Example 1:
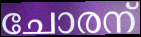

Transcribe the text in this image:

ചോരന്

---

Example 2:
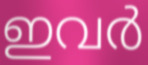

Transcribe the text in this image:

ഇവർ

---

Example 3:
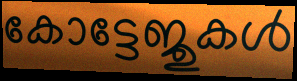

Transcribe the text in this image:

കോട്ടേജുകൾ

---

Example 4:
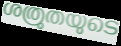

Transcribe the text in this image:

ശത്രുതയുടെ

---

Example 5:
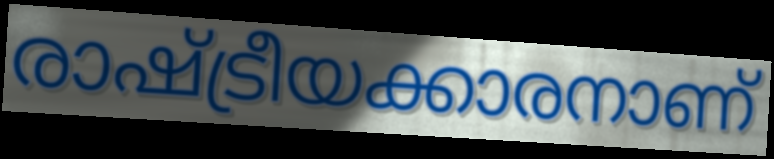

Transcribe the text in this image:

രാഷ്ട്രീയക്കാരനാണ്